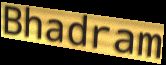
Bhadram